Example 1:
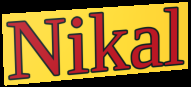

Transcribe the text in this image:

Nikal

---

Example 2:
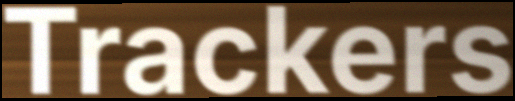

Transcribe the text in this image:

Trackers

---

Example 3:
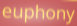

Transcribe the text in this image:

euphony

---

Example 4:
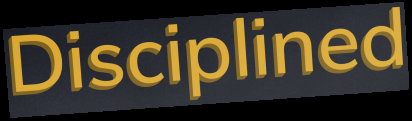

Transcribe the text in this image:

Disciplined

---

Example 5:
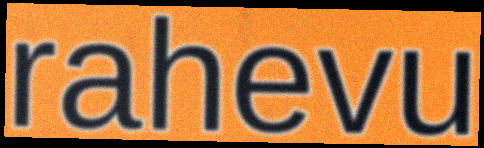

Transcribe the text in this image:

rahevu